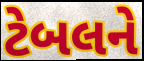
ટેબલને